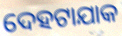
ଦେହଟାଯାକ